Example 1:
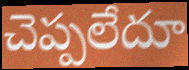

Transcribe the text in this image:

చెప్పలేదూ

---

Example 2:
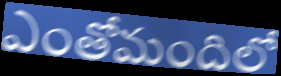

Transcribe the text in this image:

ఎంతోమందిలో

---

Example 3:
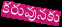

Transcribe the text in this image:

కరువునకు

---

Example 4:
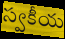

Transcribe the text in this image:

స్వకీయ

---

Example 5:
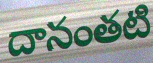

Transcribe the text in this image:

దానంతటి